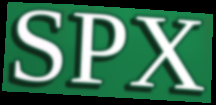
SPX